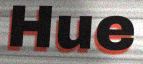
Hue